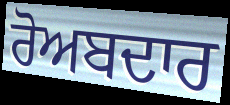
ਰੋਅਬਦਾਰ